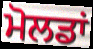
ਮੋਲਡਾਂ